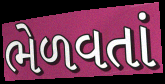
ભેળવતાં